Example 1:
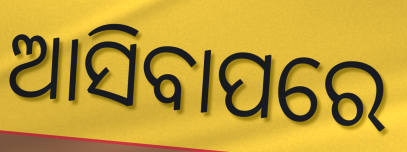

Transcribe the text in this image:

ଆସିବାପରେ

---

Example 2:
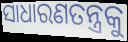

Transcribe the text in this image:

ସାଧାରଣତନ୍ତ୍ରକୁ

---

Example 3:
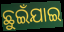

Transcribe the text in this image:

ଛୁଇଁଯାଇ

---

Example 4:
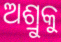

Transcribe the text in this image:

ଅଶ୍ରୁକୁ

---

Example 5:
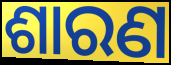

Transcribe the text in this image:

ଶାରଣ